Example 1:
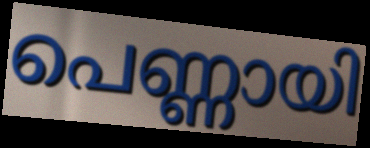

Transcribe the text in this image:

പെണ്ണായി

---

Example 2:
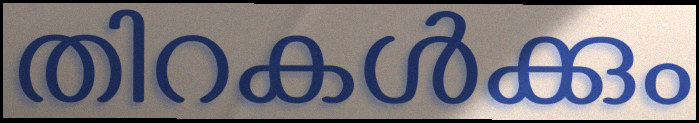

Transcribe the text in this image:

തിറകൾക്കും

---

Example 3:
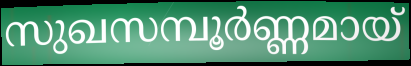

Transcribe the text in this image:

സുഖസമ്പൂർണ്ണമായ്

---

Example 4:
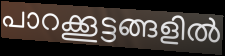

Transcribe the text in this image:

പാറക്കൂട്ടങ്ങളിൽ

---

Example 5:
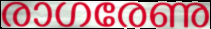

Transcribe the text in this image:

രാഗരേണു